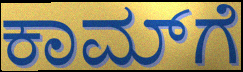
ಕಾಮ್‌ಗೆ